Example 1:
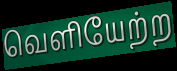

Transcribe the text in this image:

வெளியேற்ற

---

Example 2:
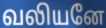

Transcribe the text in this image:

வலியனே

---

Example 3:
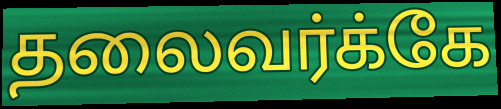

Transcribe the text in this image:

தலைவர்க்கே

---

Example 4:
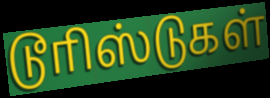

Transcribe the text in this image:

டூரிஸ்டுகள்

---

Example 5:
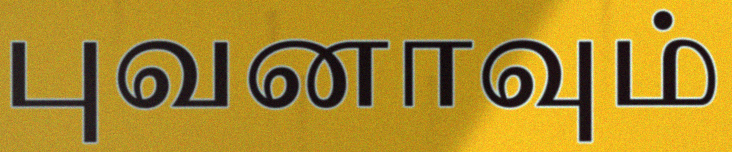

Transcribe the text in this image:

புவனாவும்